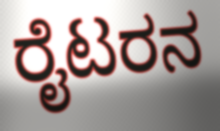
ರೈಟರನ